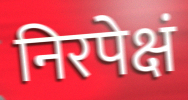
निरपेक्षं